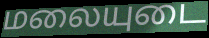
மலையுடை